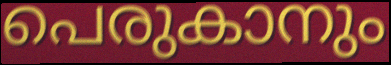
പെരുകാനും